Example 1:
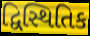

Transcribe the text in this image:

દ્વિસ્થિતિક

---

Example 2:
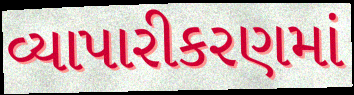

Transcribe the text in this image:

વ્યાપારીકરણમાં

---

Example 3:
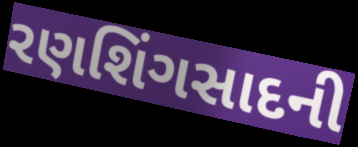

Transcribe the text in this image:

રણશિંગસાદની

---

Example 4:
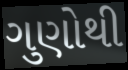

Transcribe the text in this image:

ગુણોથી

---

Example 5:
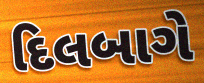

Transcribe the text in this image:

દિલબાગે